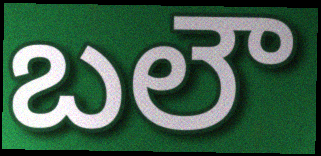
బలౌ